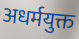
अधर्मयुक्त